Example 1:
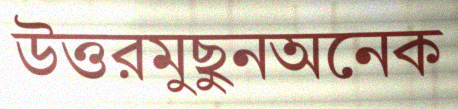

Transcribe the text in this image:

উত্তরমুছুনঅনেক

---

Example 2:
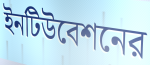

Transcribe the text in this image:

ইনটিউবেশনের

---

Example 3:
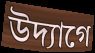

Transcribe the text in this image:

উদ্যাগে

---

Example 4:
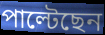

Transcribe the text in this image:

পাল্টেছেন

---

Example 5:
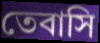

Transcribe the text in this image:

তেবাসি